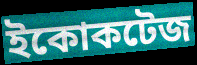
ইকোকটেজ